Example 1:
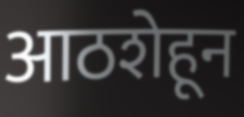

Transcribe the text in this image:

आठशेहून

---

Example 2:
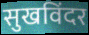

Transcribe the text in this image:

सुखविंदर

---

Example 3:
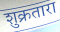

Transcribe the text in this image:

शुक्रतारा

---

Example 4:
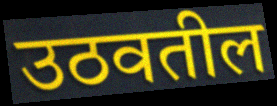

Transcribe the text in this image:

उठवतील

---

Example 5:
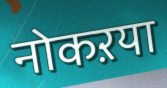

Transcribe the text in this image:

नोकऱया